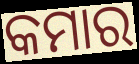
କମାର